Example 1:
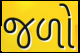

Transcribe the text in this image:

જળો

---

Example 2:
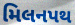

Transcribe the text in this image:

મિલનપથ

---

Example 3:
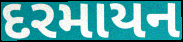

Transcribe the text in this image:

દરમાયન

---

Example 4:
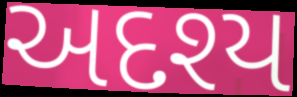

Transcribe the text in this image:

અદશ્ય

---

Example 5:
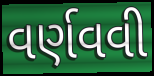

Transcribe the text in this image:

વર્ણવવી